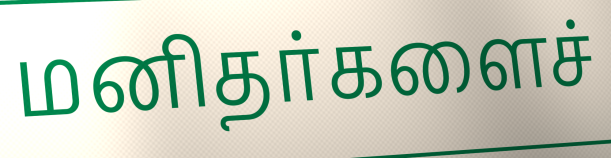
மனிதர்களைச்